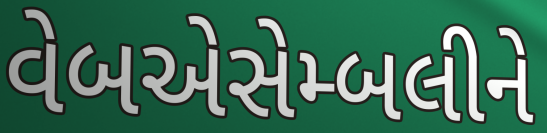
વેબએસેમ્બલીને